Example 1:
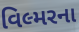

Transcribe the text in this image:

વિલ્મરના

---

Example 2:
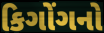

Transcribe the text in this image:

કિગોંગનો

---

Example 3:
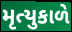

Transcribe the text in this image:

મૃત્યુકાળે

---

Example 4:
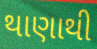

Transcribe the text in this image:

થાણાથી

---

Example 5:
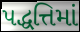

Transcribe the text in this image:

પદ્ધત્તિમાં